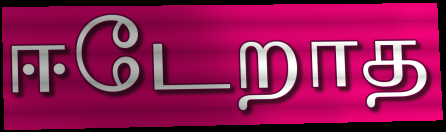
ஈடேறாத